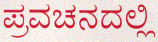
ಪ್ರವಚನದಲ್ಲಿ